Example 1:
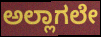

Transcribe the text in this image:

ಅಲ್ಲಾಗಲೇ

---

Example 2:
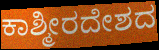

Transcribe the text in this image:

ಕಾಶ್ಮೀರದೇಶದ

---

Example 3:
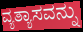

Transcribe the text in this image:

ವ್ಯತ್ಯಾಸವನ್ನು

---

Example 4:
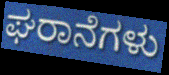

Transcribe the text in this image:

ಘರಾನೆಗಳು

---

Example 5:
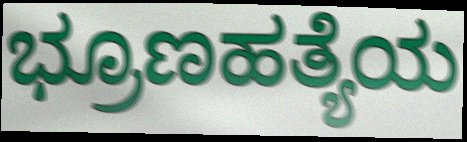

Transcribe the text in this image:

ಭ್ರೂಣಹತ್ಯೆಯ